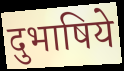
दुभाषिये